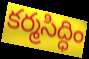
కర్మసిద్ధిం